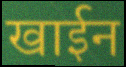
खाईन